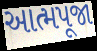
આત્મપૂજા